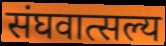
संघवात्सल्य